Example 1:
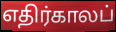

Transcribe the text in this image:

எதிர்காலப்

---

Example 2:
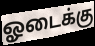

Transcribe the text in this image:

ஓடைக்கு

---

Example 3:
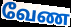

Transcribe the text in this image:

வேண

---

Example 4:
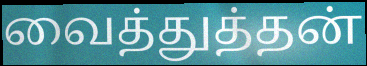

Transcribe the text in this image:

வைத்துத்தன்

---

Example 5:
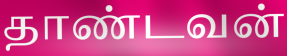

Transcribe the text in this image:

தாண்டவன்